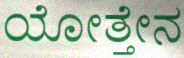
ಯೋತ್ತೇನ